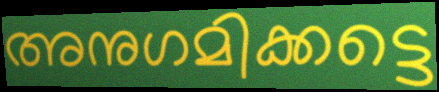
അനുഗമിക്കട്ടെ